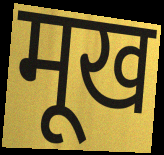
मूख